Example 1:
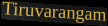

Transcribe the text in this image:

Tiruvarangam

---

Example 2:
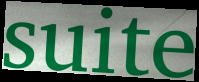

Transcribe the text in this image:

suite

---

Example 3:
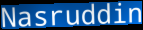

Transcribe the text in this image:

Nasruddin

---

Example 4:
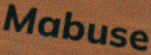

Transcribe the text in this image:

Mabuse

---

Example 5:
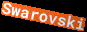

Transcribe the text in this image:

Swarovski